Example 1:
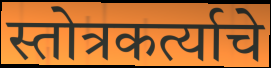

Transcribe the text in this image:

स्तोत्रकर्त्याचे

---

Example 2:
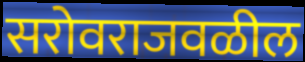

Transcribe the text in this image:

सरोवराजवळील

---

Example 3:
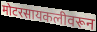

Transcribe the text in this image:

मोटरसायकलीवरून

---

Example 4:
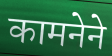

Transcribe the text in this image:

कामनेने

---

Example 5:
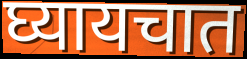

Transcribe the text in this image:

घ्यायचात